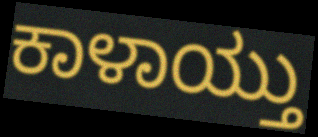
ಕಾಳಾಯ್ತು